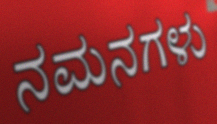
ನಮನಗಳು